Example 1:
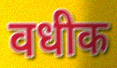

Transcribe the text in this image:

वधीक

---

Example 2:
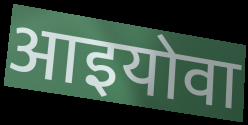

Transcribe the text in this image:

आइयोवा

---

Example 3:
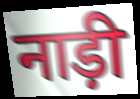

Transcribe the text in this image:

नाड़ी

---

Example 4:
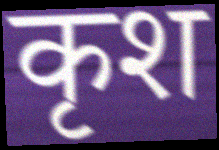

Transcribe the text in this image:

कृश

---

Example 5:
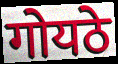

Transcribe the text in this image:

गोयठे